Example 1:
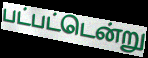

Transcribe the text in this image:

பட்பட்டென்று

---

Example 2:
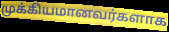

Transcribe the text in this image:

முக்கியமானவர்களாக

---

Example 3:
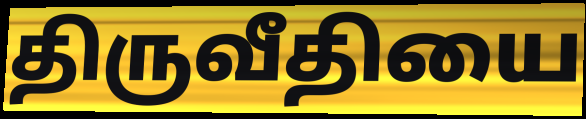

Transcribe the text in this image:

திருவீதியை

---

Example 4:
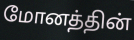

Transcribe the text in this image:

மோனத்தின்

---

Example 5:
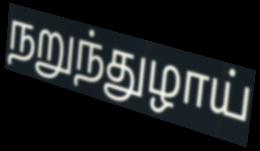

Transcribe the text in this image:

நறுந்துழாய்